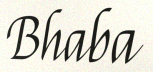
Bhaba